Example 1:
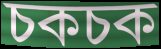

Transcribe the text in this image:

চকচক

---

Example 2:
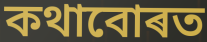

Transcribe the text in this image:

কথাবোৰত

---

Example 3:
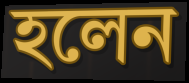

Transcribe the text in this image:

হলেন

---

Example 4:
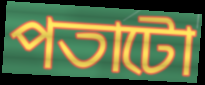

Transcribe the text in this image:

পতাটো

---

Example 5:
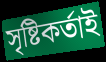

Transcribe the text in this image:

সৃষ্টিকৰ্তাই